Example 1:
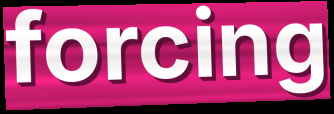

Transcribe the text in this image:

forcing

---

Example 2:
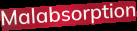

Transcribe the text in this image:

Malabsorption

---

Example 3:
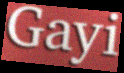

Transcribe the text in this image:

Gayi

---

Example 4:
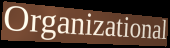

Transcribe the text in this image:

Organizational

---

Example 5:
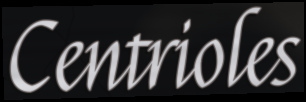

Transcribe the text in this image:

Centrioles